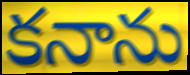
కనాను